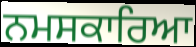
ਨਮਸਕਾਰਿਆ